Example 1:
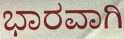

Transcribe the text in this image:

ಭಾರವಾಗಿ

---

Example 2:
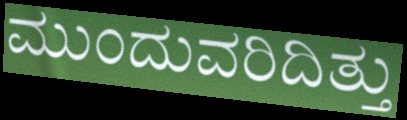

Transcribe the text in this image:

ಮುಂದುವರಿದಿತ್ತು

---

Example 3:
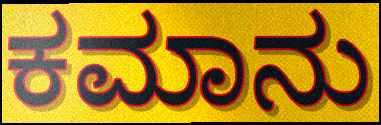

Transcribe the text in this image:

ಕಮಾನು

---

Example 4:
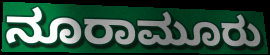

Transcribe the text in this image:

ನೂರಾಮೂರು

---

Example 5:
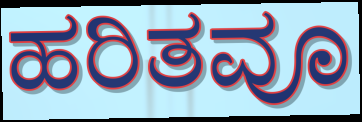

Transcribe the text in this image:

ಹರಿತವೂ